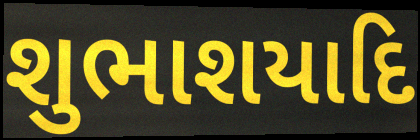
શુભાશયાદિ